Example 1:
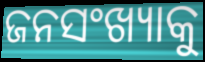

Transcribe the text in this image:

ଜନସଂଖ୍ୟାକୁ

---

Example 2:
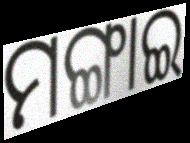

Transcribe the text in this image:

ମଙ୍ଗାଇ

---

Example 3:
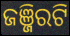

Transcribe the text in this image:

ଜଞ୍ଜିରଟି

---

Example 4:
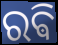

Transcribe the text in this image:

ରଵି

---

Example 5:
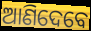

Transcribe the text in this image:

ଆଣିଦେବେ